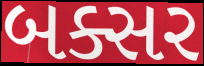
બક્સર